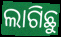
ଲାଗିଛୁ